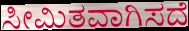
ಸೀಮಿತವಾಗಿಸದೆ